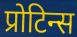
प्रोटिन्स